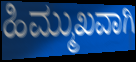
ಹಿಮ್ಮುಖವಾಗಿ